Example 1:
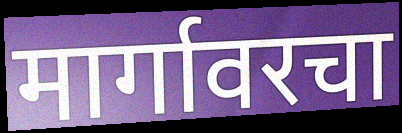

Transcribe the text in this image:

मार्गावरचा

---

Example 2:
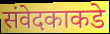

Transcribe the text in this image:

संवेदकाकडे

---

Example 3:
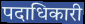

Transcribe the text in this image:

पदाधिकारी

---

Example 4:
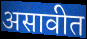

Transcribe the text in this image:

असावीत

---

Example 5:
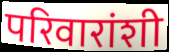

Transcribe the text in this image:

परिवारांशी